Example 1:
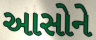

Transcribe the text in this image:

આસોને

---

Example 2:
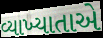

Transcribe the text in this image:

વ્યાખ્યાતાએ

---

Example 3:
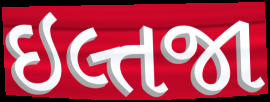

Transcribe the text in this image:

ઇલ્તજા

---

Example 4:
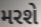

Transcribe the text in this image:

મરશે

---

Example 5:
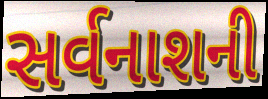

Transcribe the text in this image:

સર્વનાશની